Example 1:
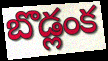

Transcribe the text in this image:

బొడ్లంక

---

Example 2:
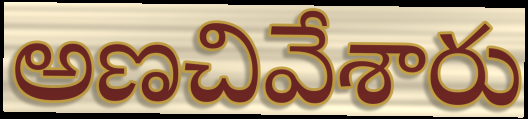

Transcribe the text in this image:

అణచివేశారు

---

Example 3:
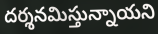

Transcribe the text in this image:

దర్శనమిస్తున్నాయని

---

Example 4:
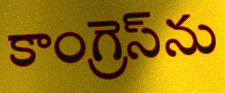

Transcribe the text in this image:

కాంగ్రెస్‌ను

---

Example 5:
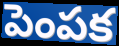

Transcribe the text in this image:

పెంపక